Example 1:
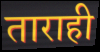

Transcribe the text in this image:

ताराही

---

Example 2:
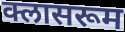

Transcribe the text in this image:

क्लासरूम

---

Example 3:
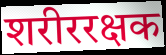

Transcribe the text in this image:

शरीररक्षक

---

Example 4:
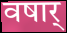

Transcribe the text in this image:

वषार्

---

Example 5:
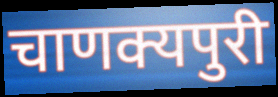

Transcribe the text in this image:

चाणक्यपुरी